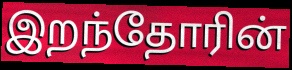
இறந்தோரின்